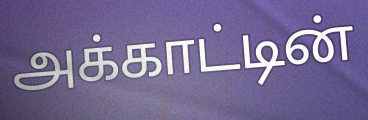
அக்காட்டின்